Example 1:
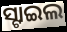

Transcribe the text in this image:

ସ୍ଟାଇଲ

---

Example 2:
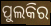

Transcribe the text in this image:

ପୁଲକିର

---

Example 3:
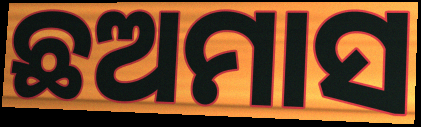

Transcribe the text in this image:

ଛଅମାସ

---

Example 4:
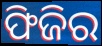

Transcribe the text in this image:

ଫିଜିର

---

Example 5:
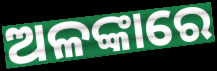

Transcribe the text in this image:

ଅଳଙ୍କାରେ